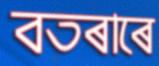
বতৰাৰে